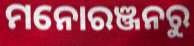
ମନୋରଞ୍ଜନରୁ